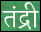
तंद्री